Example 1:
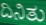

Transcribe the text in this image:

ದಿನಿತು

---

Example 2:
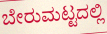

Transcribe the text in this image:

ಬೇರುಮಟ್ಟದಲ್ಲಿ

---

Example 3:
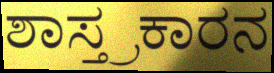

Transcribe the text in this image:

ಶಾಸ್ತ್ರಕಾರನ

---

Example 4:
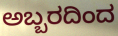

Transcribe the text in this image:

ಅಬ್ಬರದಿಂದ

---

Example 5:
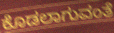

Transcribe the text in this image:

ಕೊಡಲಾಗುವಂತೆ